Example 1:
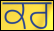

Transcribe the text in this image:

ਕਰ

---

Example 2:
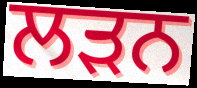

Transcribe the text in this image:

ਲਡ਼ਨ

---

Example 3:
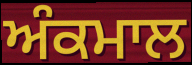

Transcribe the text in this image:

ਅੰਕਮਾਲ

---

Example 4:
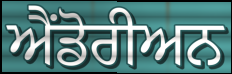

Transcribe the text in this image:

ਐਂਡੋਰੀਅਨ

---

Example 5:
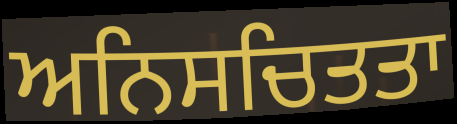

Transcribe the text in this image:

ਅਨਿਸਚਿਤਤਾ